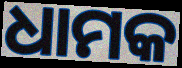
ଧାମକ